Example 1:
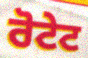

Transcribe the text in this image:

ਰੋਟੇਟ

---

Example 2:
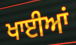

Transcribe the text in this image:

ਖਾਈਆਂ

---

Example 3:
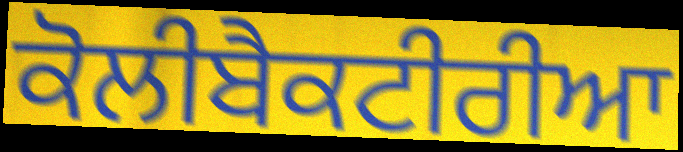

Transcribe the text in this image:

ਕੋਲੀਬੈਕਟੀਰੀਆ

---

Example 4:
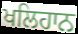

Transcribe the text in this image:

ਖਲਿਹਾਨ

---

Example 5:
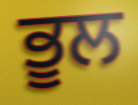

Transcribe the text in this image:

ਭੂਲ